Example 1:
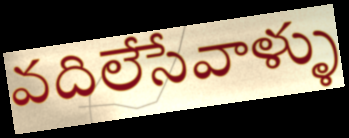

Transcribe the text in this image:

వదిలేసేవాళ్ళు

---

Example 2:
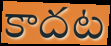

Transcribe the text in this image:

కాదట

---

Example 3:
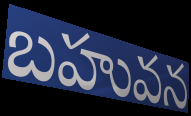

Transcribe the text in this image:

బహువన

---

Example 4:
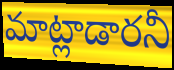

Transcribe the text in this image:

మాట్లాడారనీ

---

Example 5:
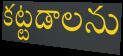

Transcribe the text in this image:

కట్టడాలను